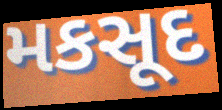
મકસૂદ